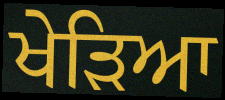
ਖੇੜਿਆ